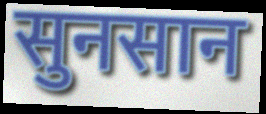
सुनसान